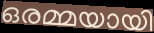
ഒരമ്മയായി